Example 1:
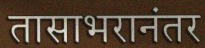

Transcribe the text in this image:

तासाभरानंतर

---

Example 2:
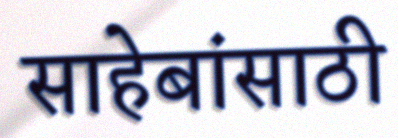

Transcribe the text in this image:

साहेबांसाठी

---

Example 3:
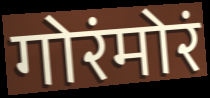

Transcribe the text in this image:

गोरंमोरं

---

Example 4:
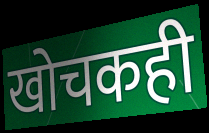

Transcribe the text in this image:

खोचकही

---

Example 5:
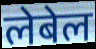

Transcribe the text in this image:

लेबेल